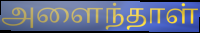
அளைந்தாள்